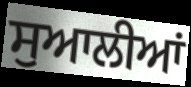
ਸੁਆਲੀਆਂ